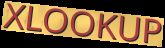
XLOOKUP